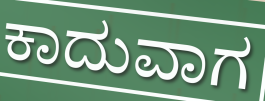
ಕಾದುವಾಗ